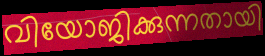
വിയോജിക്കുന്നതായി